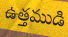
ఉత్తముడి